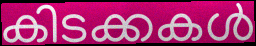
കിടക്കകൾ